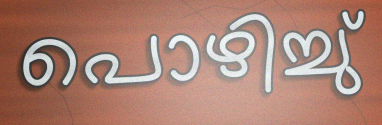
പൊഴിച്ചു്